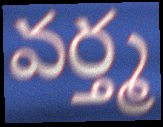
వర్త్మ